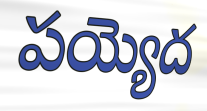
పయ్యెద